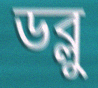
ডব্লু